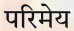
परिमेय